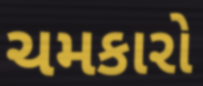
ચમકારો